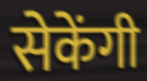
सेकेंगी